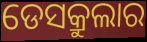
ଡେସକ୍ରୁଲାର